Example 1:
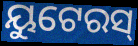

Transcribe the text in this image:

ୟୁଟେରସ୍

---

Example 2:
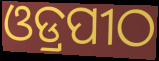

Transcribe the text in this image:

ଓଡ୍ରପୀଠ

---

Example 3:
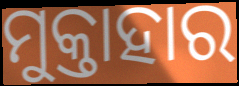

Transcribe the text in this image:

ମୁକ୍ତାହାର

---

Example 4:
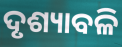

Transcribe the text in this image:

ଦୃଶ୍ୟାବଳି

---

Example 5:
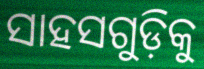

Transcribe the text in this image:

ସାହସଗୁଡ଼ିକୁ